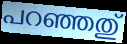
പറഞ്ഞതു്